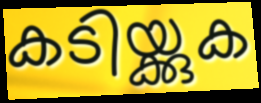
കടിയ്ക്കുക